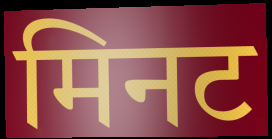
मिनट